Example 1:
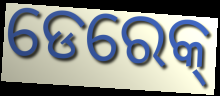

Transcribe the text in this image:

ଡେରେକ୍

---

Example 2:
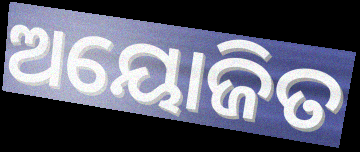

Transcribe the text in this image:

ଅୟୋଜିତ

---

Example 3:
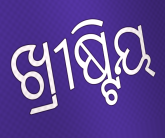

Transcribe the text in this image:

ଖ୍ରୀଷ୍ଟିୟ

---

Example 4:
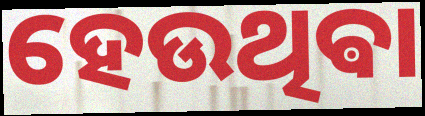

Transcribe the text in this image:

ହେଉଥିଵା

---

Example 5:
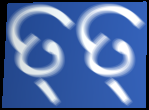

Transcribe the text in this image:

ତ୍‌ତ୍